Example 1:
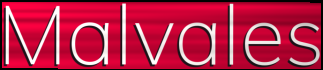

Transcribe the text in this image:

Malvales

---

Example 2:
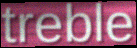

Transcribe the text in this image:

treble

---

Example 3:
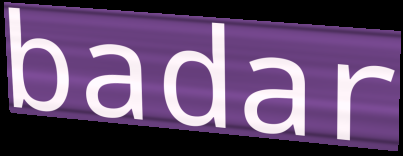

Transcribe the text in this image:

badar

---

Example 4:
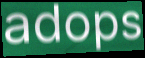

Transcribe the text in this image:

adops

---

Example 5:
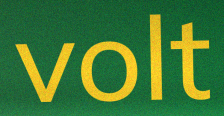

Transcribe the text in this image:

volt